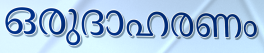
ഒരുദാഹരണം